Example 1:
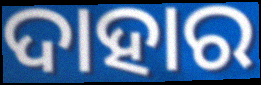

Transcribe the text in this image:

ଦାହାର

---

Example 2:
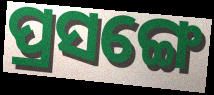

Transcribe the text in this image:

ପ୍ରସଙ୍ଗେ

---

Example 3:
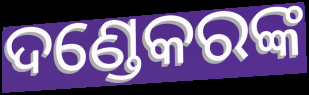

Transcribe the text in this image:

ଦଣ୍ଡେକରଙ୍କ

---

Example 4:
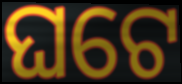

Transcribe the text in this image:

ଘଟେ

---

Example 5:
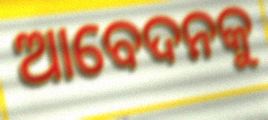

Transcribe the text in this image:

ଆବେଦନକୁ